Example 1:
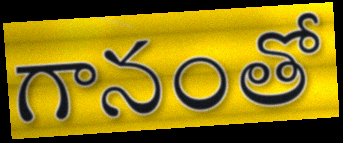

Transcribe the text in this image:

గానంతో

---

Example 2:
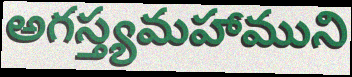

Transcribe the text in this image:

అగస్త్యమహాముని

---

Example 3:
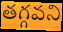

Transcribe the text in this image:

తగ్గవని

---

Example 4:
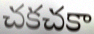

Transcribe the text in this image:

చకచకా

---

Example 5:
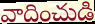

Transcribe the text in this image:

వాదించుడి